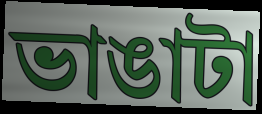
ভাঙাটা